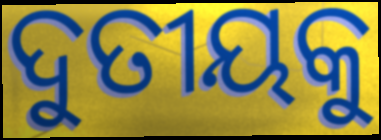
ଦୁତୀୟକୁ